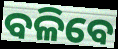
ବଳିବେ